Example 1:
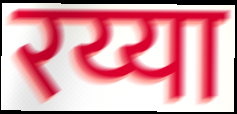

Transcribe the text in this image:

रय्या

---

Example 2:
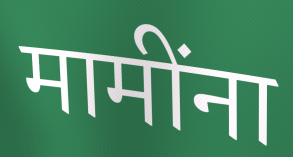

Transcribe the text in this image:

मामींना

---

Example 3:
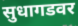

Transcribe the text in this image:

सुधागडवर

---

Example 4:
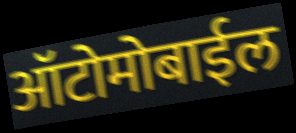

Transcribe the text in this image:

ऑटोमोबाईल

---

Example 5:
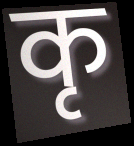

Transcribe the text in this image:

कृ